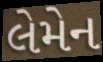
લેમેન